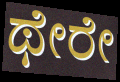
ಥೇರೇ